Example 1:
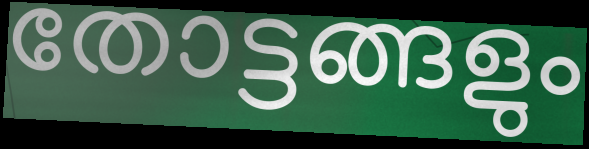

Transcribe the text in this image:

തോട്ടങ്ങളും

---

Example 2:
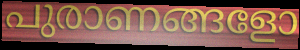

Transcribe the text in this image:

പുരാണങ്ങളോ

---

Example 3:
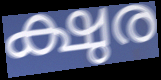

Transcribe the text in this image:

ക്ഷുര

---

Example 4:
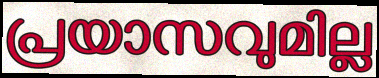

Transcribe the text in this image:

പ്രയാസവുമില്ല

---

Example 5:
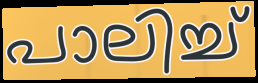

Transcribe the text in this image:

പാലിച്ച്